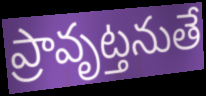
ప్రావృట్తనుతే